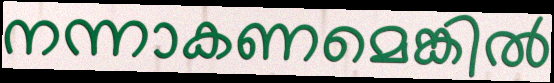
നന്നാകണമെങ്കിൽ